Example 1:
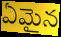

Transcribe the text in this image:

ఏమైన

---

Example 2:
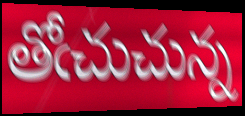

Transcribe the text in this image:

తోఁచుచున్న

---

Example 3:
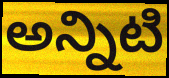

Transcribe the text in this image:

అన్నిటి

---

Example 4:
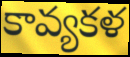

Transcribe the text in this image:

కావ్యకళ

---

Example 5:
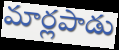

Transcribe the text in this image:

మార్లపాడు